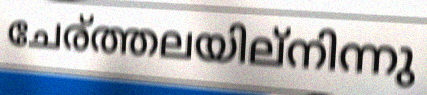
ചേര്ത്തലയില്നിന്നു